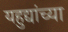
यहुद्यांच्या